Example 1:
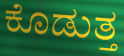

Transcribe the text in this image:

ಕೊಡುತ್ತ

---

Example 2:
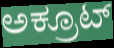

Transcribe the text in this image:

ಅಕ್ರೂಟ್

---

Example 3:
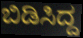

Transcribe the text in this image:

ಬಿಡಿಸಿದ್ದ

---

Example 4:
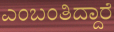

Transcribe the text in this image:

ಎಂಬಂತಿದ್ದಾರೆ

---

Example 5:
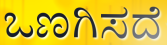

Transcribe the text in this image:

ಒಣಗಿಸದೆ